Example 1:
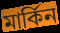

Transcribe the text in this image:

মার্কিন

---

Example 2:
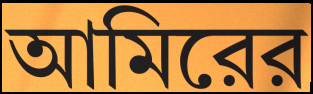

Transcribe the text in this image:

আমিরের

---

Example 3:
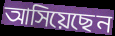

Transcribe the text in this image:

আসিয়েছেন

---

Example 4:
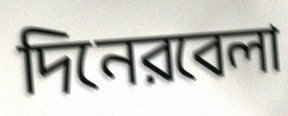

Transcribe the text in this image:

দিনেরবেলা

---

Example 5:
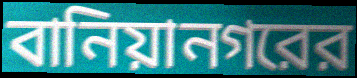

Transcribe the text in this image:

বানিয়ানগরের